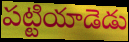
పట్టియాడెడు